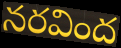
నరవింద